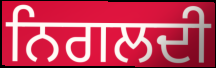
ਨਿਗਲਦੀ